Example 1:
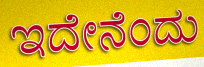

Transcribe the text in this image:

ಇದೇನೆಂದು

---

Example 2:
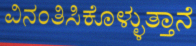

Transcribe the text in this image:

ವಿನಂತಿಸಿಕೊಳ್ಳುತ್ತಾನೆ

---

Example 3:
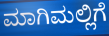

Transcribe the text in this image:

ಮಾಗಿಮಲ್ಲಿಗೆ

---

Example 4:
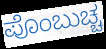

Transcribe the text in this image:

ಪೊಂಬುಚ್ಚ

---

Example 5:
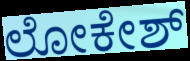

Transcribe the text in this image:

ಲೋಕೇಶ್